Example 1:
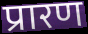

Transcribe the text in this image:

प्रारण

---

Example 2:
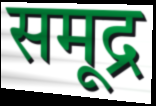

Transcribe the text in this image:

समूद्र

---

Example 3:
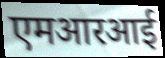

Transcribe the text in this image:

एमआरआई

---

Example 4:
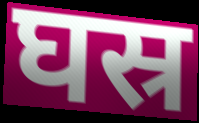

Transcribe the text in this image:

घस्र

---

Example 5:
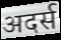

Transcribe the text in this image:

अदर्स